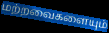
மற்றவைகளையும்